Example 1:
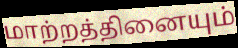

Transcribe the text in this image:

மாற்றத்தினையும்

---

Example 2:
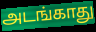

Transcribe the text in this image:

அடங்காது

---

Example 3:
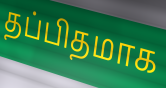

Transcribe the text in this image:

தப்பிதமாக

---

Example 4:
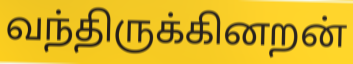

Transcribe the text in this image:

வந்திருக்கினறன்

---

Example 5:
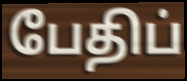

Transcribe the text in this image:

பேதிப்